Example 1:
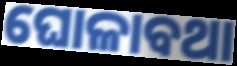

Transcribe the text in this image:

ଘୋଳାବଥା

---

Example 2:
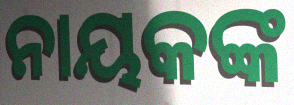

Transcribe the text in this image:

ନାୟକଙ୍କ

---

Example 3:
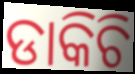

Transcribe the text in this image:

ଡାକିଚି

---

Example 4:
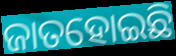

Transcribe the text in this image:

ଜାତହୋଇଛି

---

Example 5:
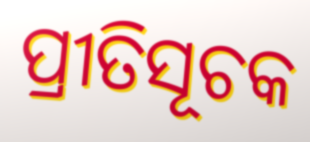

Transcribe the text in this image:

ପ୍ରୀତିସୂଚକ